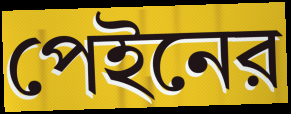
পেইনের